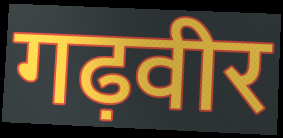
गढ़वीर